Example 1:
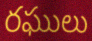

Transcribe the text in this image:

రఘులు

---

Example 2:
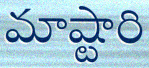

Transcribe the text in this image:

మాష్టారి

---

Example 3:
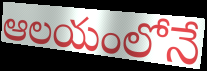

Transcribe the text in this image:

ఆలయంలోనే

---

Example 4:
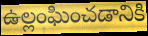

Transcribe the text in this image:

ఉల్లంఘించడానికి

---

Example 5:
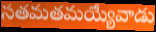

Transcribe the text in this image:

సతమతమయ్యేవాడు